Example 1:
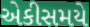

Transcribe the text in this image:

એકીસમયે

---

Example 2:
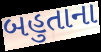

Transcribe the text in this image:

બહુતાના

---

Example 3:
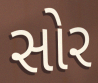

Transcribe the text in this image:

સોર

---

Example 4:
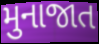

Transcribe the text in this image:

મુનાજાત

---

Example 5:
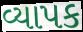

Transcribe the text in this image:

વ્યાપક